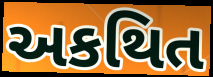
અકથિત